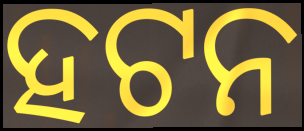
ହଟନ